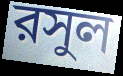
রসুল